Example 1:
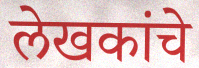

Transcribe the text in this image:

लेखकांचे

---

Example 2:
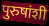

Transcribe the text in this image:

पुरुषांशी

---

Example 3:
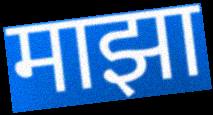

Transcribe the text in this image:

माझा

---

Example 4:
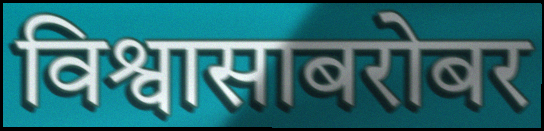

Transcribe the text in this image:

विश्वासाबरोबर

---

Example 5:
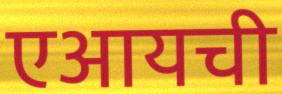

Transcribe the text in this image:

एआयची